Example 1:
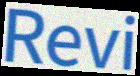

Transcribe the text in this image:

Revi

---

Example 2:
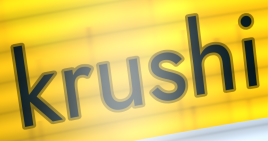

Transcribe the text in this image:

krushi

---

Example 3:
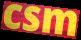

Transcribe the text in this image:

csm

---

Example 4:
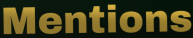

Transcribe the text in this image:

Mentions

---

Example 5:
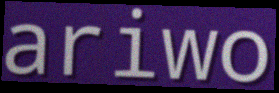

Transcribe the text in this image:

ariwo